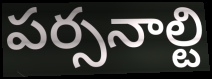
పర్సనాల్టి